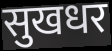
सुखधर